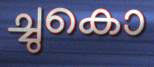
ച്ചുകൊ